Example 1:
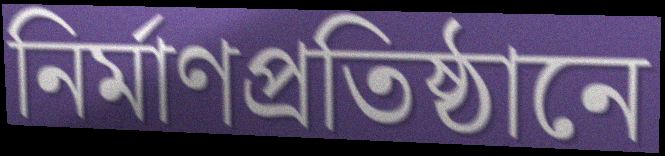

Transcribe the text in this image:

নির্মাণপ্রতিষ্ঠানে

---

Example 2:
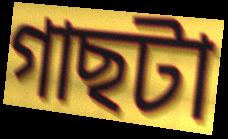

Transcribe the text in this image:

গাছটা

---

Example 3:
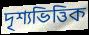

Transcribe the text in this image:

দৃশ্যভিত্তিক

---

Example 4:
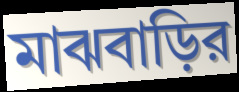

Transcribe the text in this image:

মাঝবাড়ির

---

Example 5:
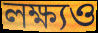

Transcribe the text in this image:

লক্ষ্যও